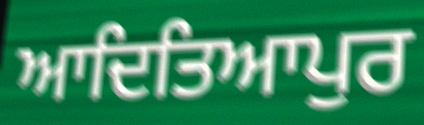
ਆਦਿਤਿਆਪੁਰ